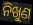
ନିଖୁଣ